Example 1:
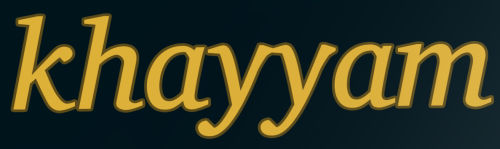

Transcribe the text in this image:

khayyam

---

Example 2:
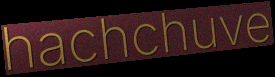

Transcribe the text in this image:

hachchuve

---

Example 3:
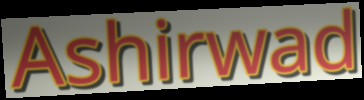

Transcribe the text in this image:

Ashirwad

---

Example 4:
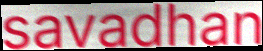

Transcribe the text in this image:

savadhan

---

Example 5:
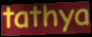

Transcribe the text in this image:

tathya